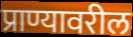
प्राण्यावरील